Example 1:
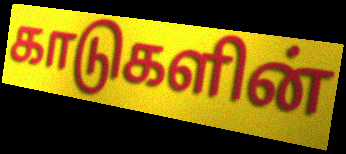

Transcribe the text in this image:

காடுகளின்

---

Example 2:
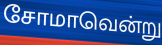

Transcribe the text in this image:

சோமாவென்று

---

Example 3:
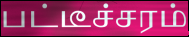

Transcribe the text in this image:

பட்டீச்சரம்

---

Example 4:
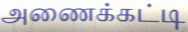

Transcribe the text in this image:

அணைக்கட்டி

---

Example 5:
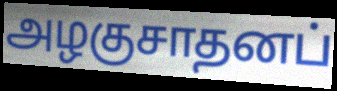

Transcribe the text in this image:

அழகுசாதனப்